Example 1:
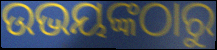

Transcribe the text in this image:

ଉଭୟଙ୍କଠାରୁ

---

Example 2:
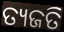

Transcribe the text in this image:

ତ୍ୟଜତି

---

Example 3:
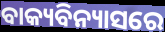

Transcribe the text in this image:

ବାକ୍ୟବିନ୍ୟାସରେ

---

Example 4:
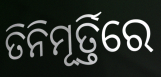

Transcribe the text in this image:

ତିନିମୂର୍ତ୍ତିରେ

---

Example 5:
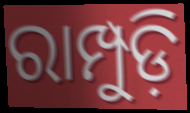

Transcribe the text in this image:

ରାମ୍ପୁଡ଼ି